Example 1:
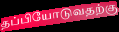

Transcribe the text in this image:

தப்பியோடுவதற்கு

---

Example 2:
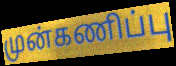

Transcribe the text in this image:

முன்கணிப்பு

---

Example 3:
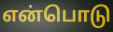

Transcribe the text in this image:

என்பொடு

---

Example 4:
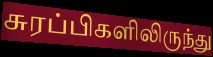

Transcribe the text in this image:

சுரப்பிகளிலிருந்து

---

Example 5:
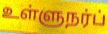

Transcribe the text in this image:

உள்ளுநர்ப்